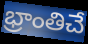
భ్రాంతిచే